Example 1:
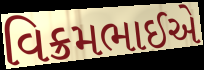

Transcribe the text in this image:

વિક્રમભાઈએ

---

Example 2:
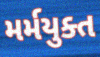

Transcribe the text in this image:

મર્મયુક્ત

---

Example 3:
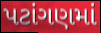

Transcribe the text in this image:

પટાંગણમાં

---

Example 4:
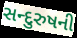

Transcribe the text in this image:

સન્દુરુષની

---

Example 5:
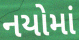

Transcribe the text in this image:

નયોમાં